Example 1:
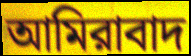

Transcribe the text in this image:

আমিরাবাদ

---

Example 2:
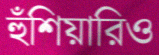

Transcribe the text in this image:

হুঁশিয়ারিও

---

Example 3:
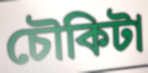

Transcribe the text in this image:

চৌকিটা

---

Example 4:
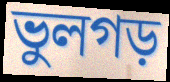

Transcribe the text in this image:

ভুলগড়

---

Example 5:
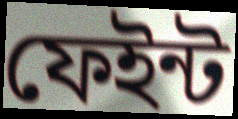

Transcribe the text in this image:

ফেইন্ট